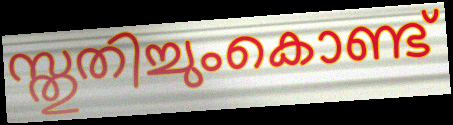
സ്തുതിച്ചുംകൊണ്ട്